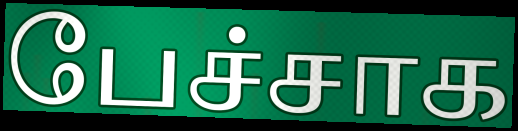
பேச்சாக